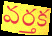
వర్తక